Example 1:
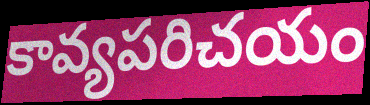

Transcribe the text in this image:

కావ్యపరిచయం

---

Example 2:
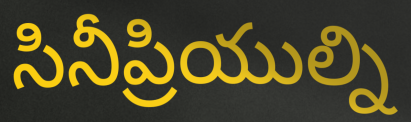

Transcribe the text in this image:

సినీప్రియుల్ని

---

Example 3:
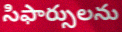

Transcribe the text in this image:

సిఫార్సులను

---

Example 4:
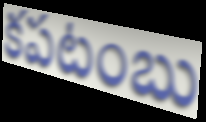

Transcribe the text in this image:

కపటంబు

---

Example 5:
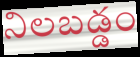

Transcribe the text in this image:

నిలబడ్డం